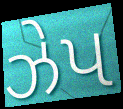
ઝેપ